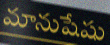
మానుషేషు